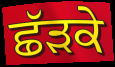
ਛੱੜਕੇ